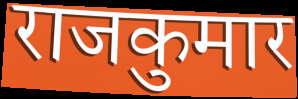
राजकुमार